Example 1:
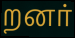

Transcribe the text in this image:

றனர்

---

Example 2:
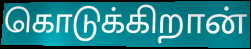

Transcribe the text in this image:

கொடுக்கிறான்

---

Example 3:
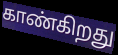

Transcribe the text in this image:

காண்கிறது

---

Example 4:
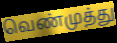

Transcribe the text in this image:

வெண்முத்து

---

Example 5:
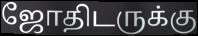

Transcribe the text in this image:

ஜோதிடருக்கு